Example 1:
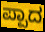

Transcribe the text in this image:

ಪ್ಪಾದ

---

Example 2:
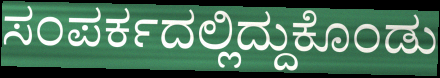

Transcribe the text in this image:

ಸಂಪರ್ಕದಲ್ಲಿದ್ದುಕೊಂಡು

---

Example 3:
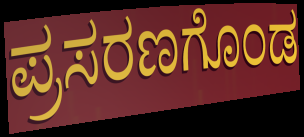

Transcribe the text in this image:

ಪ್ರಸರಣಗೊಂಡ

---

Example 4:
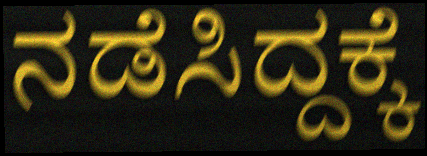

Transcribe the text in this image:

ನಡೆಸಿದ್ದಕ್ಕೆ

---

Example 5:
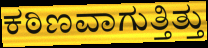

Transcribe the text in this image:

ಕಠಿಣವಾಗುತ್ತಿತ್ತು